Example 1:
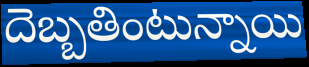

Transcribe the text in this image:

దెబ్బతింటున్నాయి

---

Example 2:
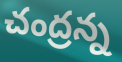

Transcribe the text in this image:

చంద్రన్న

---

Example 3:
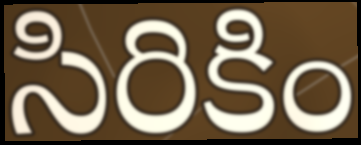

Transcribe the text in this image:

సిరికిం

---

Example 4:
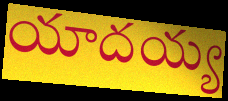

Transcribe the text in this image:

యాదయ్య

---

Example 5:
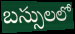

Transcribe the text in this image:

బస్సులలో